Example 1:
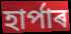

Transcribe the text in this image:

হাৰ্পাৰ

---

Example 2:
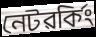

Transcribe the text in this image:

নেটৱৰ্কিং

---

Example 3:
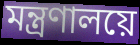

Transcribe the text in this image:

মন্ত্ৰণালয়ে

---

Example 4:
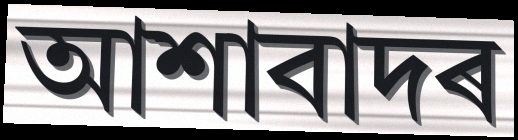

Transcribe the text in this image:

আশাবাদৰ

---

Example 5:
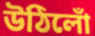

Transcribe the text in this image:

উঠিলোঁ